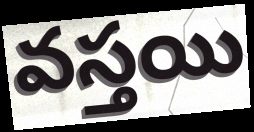
వస్తయి